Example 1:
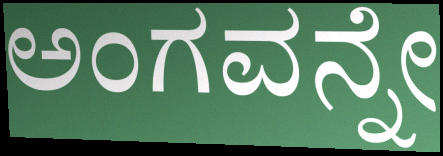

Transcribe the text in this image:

ಅಂಗವನ್ನೇ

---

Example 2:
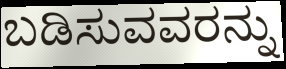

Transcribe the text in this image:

ಬಡಿಸುವವರನ್ನು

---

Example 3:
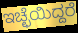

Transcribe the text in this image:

ಇಚ್ಛೆಯಿದ್ದರೆ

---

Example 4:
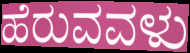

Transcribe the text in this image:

ಹೆರುವವಳು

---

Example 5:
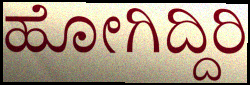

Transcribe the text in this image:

ಹೋಗಿದ್ದಿರಿ